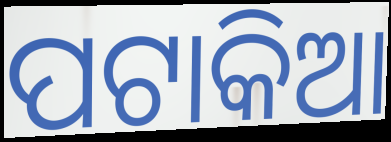
ପଟାକିଆ